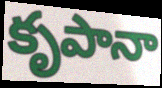
కృపానా